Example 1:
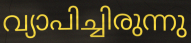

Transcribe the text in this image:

വ്യാപിച്ചിരുന്നു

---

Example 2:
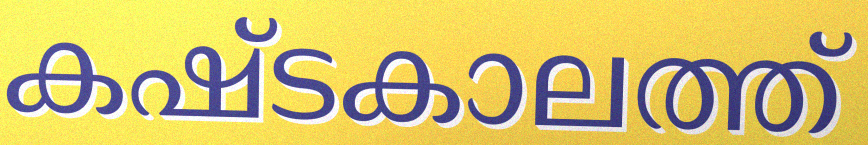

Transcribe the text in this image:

കഷ്ടകാലത്ത്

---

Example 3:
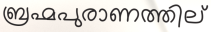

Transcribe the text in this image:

ബ്രഹ്മപുരാണത്തില്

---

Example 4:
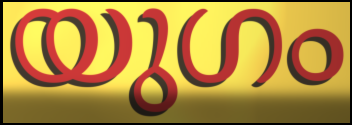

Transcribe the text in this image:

യുഗം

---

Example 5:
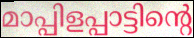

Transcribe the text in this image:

മാപ്പിളപ്പാട്ടിന്റെ